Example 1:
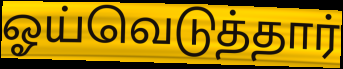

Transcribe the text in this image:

ஓய்வெடுத்தார்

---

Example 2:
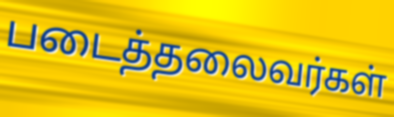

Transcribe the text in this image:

படைத்தலைவர்கள்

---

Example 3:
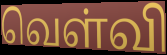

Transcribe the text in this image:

வெள்வி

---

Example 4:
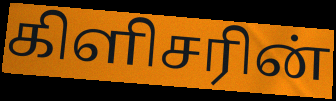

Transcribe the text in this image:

கிளிசரின்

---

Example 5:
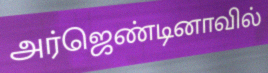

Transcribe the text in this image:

அர்ஜெண்டினாவில்